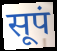
सूपं